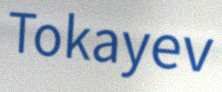
Tokayev